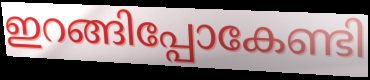
ഇറങ്ങിപ്പോകേണ്ടി